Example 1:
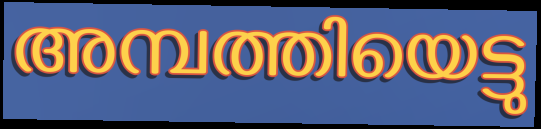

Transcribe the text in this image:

അമ്പത്തിയെട്ടു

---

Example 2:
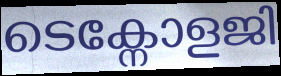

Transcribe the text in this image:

ടെക്നോളജി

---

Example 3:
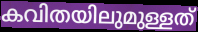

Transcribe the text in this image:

കവിതയിലുമുള്ളത്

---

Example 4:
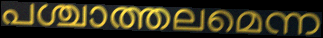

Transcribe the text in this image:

പശ്ചാത്തലമെന്ന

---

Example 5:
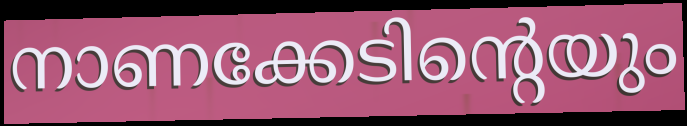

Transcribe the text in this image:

നാണക്കേടിന്റെയും